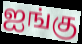
ஐங்கு